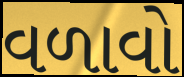
વળાવો